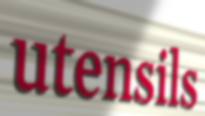
utensils